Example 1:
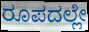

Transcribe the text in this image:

ರೂಪದಲ್ಲೇ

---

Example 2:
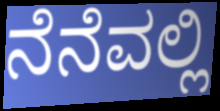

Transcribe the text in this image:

ನೆನೆವಲ್ಲಿ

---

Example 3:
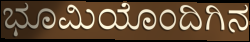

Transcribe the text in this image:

ಭೂಮಿಯೊಂದಿಗಿನ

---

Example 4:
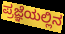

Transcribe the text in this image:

ಪ್ರಜ್ಞೆಯಲ್ಲಿನ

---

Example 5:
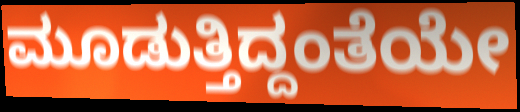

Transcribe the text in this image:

ಮೂಡುತ್ತಿದ್ದಂತೆಯೇ